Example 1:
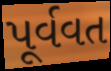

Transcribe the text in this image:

પૂર્વવત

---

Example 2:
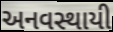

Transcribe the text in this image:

અનવસ્થાયી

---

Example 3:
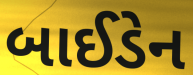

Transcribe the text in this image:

બાઈડેન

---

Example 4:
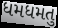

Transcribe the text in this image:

ધમધમતુ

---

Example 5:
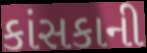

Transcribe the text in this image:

કાંસકાની